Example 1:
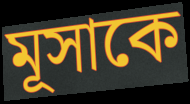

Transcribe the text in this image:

মূসাকে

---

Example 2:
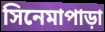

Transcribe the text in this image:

সিনেমাপাড়া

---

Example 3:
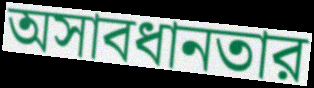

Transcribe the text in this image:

অসাবধানতার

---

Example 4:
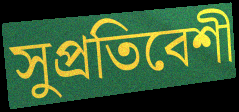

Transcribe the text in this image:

সুপ্রতিবেশী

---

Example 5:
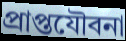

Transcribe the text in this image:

প্রাপ্তযৌবনা